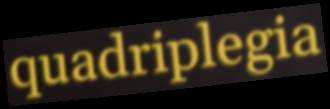
quadriplegia